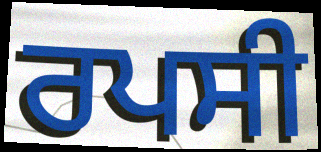
ਰਪਸੀ